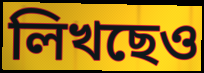
লিখছেও